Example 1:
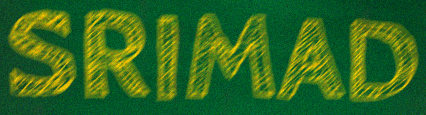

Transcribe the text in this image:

SRIMAD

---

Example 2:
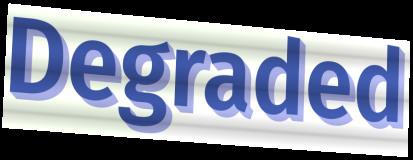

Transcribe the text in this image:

Degraded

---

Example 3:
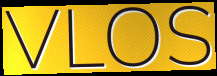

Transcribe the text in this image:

VLOS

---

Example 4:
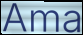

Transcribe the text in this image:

Ama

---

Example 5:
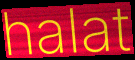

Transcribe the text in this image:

halat